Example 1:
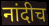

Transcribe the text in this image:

नांदीच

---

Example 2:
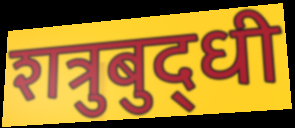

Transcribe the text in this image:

शत्रुबुद्धी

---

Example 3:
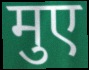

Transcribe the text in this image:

मुए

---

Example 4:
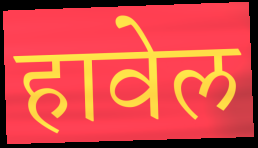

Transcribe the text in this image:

हावेल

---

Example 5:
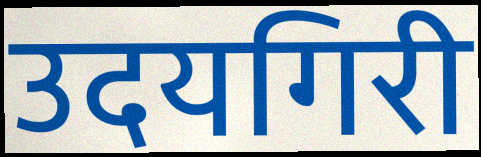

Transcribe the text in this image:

उदयगिरी